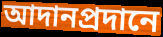
আদানপ্রদানে